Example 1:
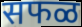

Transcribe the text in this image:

सफळ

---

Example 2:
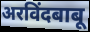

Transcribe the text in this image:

अरविंदबाबू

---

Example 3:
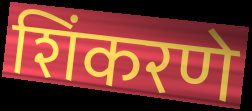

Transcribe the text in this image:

शिंकरणे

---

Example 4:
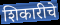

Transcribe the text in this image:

शिकारीचे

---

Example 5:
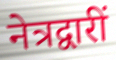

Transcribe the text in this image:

नेत्रद्वारीं